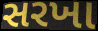
સરખા